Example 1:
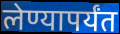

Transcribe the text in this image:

लेण्यापर्यंत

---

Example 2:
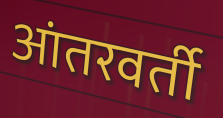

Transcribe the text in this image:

आंतरवर्ती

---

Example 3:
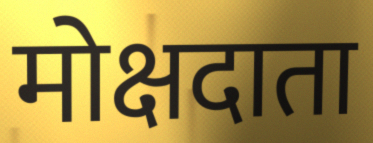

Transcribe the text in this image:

मोक्षदाता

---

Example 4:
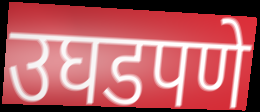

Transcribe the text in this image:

उघडपणे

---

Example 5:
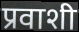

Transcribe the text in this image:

प्रवाशी